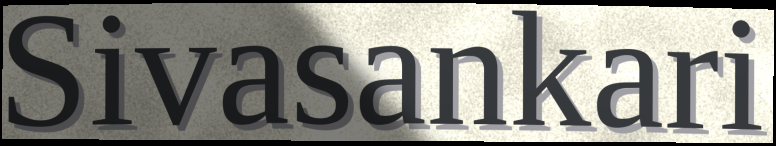
Sivasankari